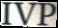
IVP